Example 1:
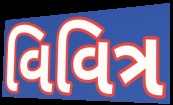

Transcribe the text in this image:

વિવિત્ર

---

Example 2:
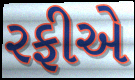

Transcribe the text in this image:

રફીએ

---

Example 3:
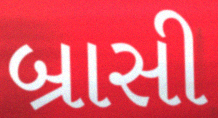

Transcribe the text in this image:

બ્રાસી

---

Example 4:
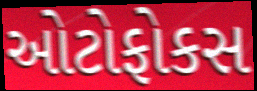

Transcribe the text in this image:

ઓટોફોકસ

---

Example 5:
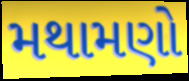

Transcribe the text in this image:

મથામણો